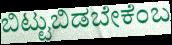
ಬಿಟ್ಟುಬಿಡಬೇಕೆಂಬ